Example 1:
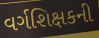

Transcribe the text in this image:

વર્ગશિક્ષકની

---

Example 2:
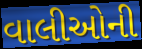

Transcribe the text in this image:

વાલીઓની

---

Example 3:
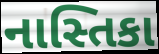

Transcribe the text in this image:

નાસ્તિકા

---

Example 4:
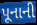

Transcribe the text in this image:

પૂનાની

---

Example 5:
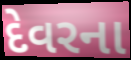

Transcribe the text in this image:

દેવરના